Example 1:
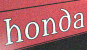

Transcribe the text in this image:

honda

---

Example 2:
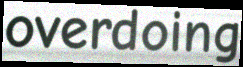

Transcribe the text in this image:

overdoing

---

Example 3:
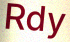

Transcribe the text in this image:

Rdy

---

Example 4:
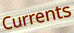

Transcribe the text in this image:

Currents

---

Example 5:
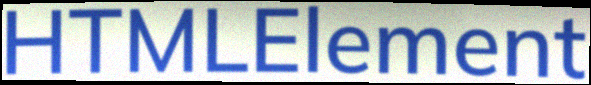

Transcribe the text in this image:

HTMLElement